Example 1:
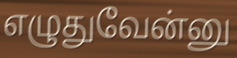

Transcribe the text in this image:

எழுதுவேன்னு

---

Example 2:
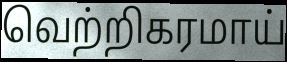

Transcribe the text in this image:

வெற்றிகரமாய்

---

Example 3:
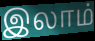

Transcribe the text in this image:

இலாம்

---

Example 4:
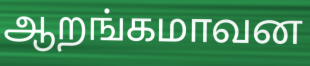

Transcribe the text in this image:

ஆறங்கமாவன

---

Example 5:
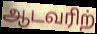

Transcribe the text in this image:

ஆடவரிற்